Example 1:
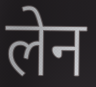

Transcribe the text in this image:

लेन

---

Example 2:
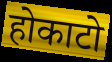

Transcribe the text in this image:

होकाटो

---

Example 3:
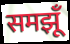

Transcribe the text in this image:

समझूँ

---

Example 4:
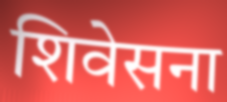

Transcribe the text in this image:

शिवेसना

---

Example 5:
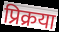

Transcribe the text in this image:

प्रिक्रया